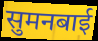
सुमनबाई